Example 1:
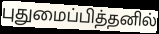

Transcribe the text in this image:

புதுமைப்பித்தனில்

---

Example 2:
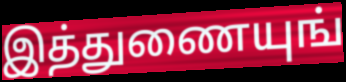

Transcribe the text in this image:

இத்துணையுங்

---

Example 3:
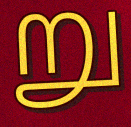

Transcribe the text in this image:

று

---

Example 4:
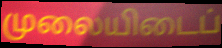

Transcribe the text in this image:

முலையிடைப்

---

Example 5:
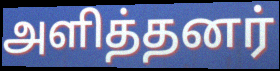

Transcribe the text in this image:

அளித்தனர்